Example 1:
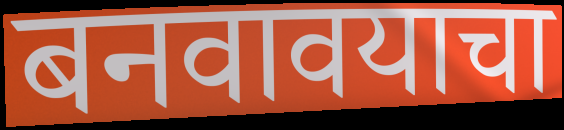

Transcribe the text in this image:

बनवावयाचा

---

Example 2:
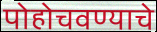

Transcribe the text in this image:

पोहोचवण्याचे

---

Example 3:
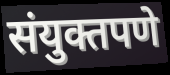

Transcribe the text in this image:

संयुक्तपणे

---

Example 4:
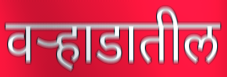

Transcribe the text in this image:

वऱ्हाडातील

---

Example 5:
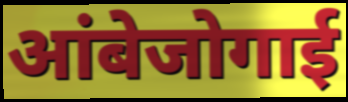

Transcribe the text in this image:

आंबेजोगाई